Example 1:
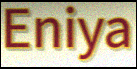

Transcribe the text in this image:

Eniya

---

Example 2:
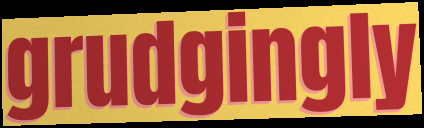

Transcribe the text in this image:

grudgingly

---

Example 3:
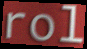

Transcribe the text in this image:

rol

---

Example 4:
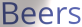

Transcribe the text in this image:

Beers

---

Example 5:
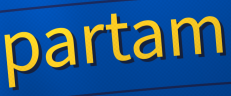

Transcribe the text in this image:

partam